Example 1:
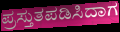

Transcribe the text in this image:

ಪ್ರಸ್ತುತಪಡಿಸಿದಾಗ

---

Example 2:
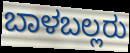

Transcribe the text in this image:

ಬಾಳಬಲ್ಲರು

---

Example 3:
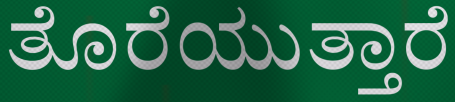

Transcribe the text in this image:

ತೊರೆಯುತ್ತಾರೆ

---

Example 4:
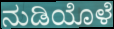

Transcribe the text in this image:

ನುಡಿಯೊಳೆ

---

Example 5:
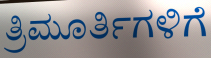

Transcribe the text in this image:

ತ್ರಿಮೂರ್ತಿಗಳಿಗೆ